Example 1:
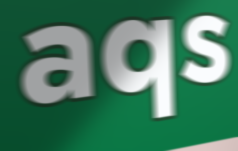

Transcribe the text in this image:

aqs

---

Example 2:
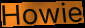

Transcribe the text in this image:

Howie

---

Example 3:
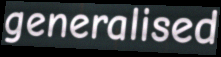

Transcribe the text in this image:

generalised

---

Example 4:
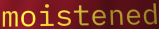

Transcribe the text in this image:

moistened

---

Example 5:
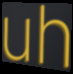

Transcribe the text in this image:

uh